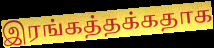
இரங்கத்தக்கதாக